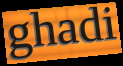
ghadi